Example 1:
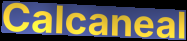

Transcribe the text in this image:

Calcaneal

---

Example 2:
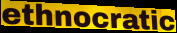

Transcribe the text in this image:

ethnocratic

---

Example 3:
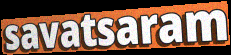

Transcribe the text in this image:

savatsaram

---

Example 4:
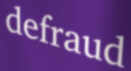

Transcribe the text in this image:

defraud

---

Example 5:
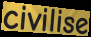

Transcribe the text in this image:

civilise